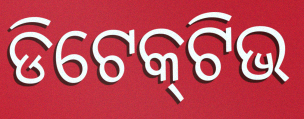
ଡିଟେକ୍‍ଟିଭ